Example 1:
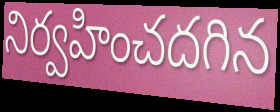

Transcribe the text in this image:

నిర్వహించదగిన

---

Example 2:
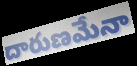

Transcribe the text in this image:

దారుణమేనా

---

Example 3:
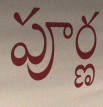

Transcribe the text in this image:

పూర్ణ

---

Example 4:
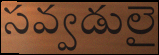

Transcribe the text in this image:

సవ్వడులై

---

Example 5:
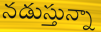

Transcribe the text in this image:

నడుస్తున్నా